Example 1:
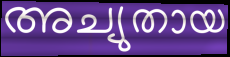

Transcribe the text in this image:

അച്യുതായ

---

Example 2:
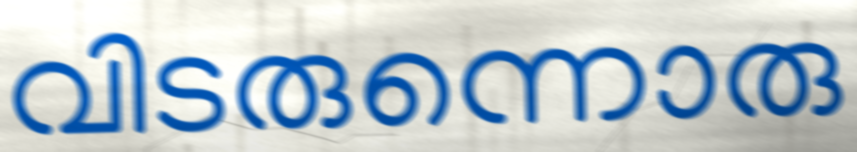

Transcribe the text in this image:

വിടരുന്നൊരു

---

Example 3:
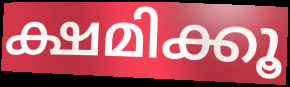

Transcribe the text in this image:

ക്ഷമിക്കൂ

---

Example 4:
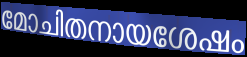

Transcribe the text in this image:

മോചിതനായശേഷം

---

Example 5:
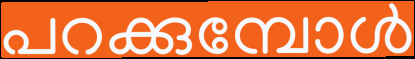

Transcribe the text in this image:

പറക്കുമ്പോൾ